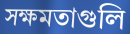
সক্ষমতাগুলি